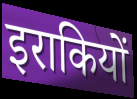
इराकियों